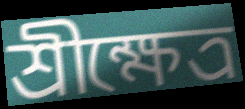
শ্রীক্ষেত্র